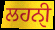
ਲਹਨੑੀ